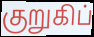
குறுகிப்